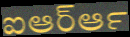
ఐఆర్ఆర్‍